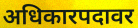
अधिकारपदावर